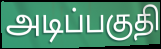
அடிப்பகுதி